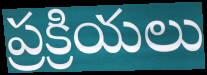
ప్రక్రియలు